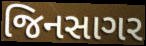
જિનસાગર